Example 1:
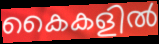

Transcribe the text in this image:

കൈകളിൽ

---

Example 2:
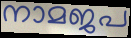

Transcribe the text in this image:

നാമജപ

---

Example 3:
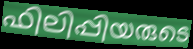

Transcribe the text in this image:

ഫിലിപ്പിയരുടെ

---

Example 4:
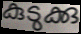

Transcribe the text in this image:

കുടുക്കു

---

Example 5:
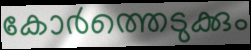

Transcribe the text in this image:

കോർത്തെടുക്കും